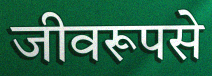
जीवरूपसे